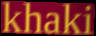
khaki